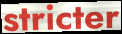
stricter